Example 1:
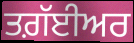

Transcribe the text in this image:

ਤਗ਼ੱਈਅਰ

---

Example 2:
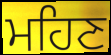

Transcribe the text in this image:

ਮਹਿਣ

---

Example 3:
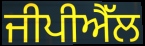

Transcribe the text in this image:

ਜੀਪੀਐੱਲ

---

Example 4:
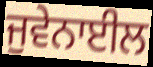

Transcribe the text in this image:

ਜੁਵੇਨਾਈਲ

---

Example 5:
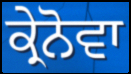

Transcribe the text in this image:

ਕ੍ਰੇਨੋਵਾ